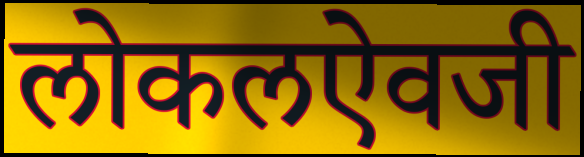
लोकलऐवजी